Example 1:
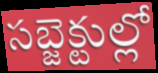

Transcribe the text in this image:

సబ్జెక్టుల్లో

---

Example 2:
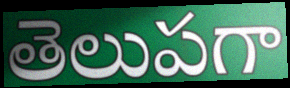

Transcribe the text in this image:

తెలుపగా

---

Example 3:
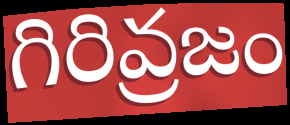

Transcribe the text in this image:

గిరివ్రజం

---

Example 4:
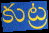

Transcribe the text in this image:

కుట్ర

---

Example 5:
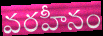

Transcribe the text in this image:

వరహీనం